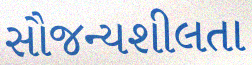
સૌજન્યશીલતા